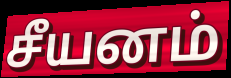
சீயனம்